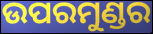
ଉପରମୁଣ୍ଡର